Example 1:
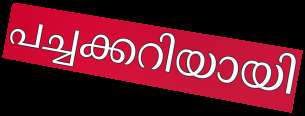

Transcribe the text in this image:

പച്ചക്കറിയായി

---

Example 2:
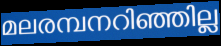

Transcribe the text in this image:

മലരമ്പനറിഞ്ഞില്ല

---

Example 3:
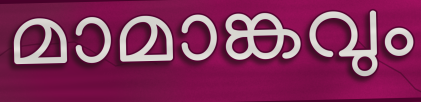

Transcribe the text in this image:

മാമാങ്കവും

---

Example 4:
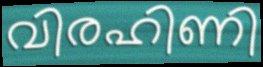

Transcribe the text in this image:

വിരഹിണി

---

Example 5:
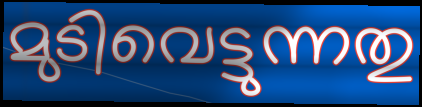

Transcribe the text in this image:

മുടിവെട്ടുന്നതു